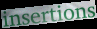
insertions